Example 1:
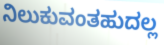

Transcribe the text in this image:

ನಿಲುಕುವಂತಹುದಲ್ಲ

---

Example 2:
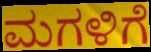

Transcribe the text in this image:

ಮಗಳಿಗೆ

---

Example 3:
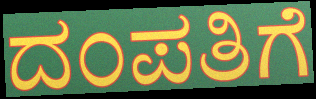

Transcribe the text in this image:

ದಂಪತಿಗೆ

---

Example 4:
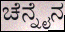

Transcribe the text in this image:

ಚೆನ್ನೈನ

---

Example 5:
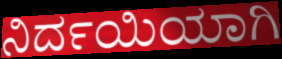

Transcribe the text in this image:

ನಿರ್ದಯಿಯಾಗಿ